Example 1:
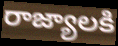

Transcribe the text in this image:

రాజ్యాలకి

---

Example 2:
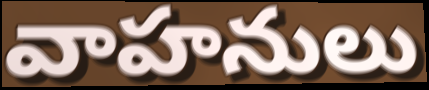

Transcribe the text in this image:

వాహనులు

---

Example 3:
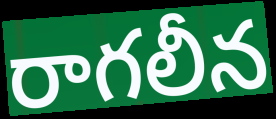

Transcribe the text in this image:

రాగలీన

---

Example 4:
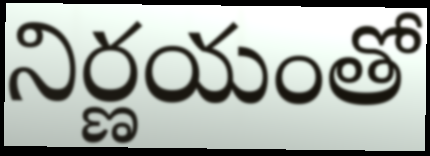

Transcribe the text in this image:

నిర్ణయంతో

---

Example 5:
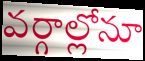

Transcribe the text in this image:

వర్గాల్లోనూ